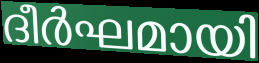
ദീർഘമായി